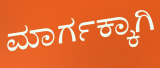
ಮಾರ್ಗಕ್ಕಾಗಿ